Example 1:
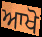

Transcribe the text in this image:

ਆਖੋ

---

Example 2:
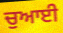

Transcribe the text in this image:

ਚੁਆਈ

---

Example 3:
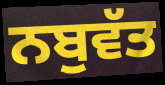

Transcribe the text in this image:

ਨਬੁਵੱਤ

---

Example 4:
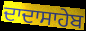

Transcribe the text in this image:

ਦਾਦਾਸਾਹੇਬ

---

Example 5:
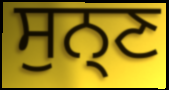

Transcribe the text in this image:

ਸੁਨ੍ਣ